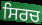
ਸਿਰਚ